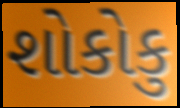
શોકોકુ